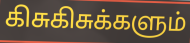
கிசுகிசுக்களும்